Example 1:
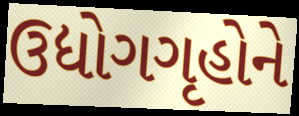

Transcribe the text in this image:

ઉદ્યોગગૃહોને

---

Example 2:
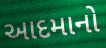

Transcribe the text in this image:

આદમાનો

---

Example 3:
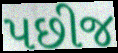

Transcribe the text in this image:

પછીજ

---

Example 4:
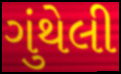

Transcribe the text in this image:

ગુંથેલી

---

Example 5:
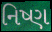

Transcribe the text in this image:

નિષ્ણ